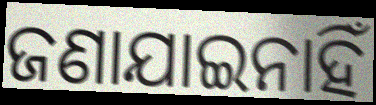
ଜଣାଯାଇନାହିଁ